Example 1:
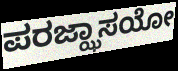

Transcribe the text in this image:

ಪರಜ್ಝಾಸಯೋ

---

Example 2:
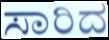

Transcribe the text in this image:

ಸಾರಿದ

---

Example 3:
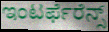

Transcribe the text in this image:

ಇಂಟರ್ಫೆರೆನ್ಸ್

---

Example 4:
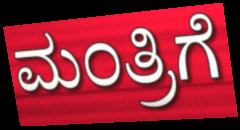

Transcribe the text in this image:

ಮಂತ್ರಿಗೆ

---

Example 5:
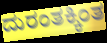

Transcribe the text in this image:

ದುರಂತಕ್ಕಿಂತ